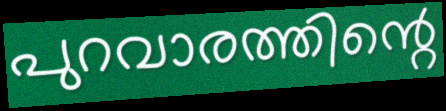
പുറവാരത്തിന്റെ